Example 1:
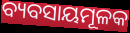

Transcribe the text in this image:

ବ୍ୟବସାୟମୂଳକ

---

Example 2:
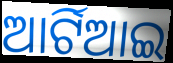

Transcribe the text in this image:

ଆର୍ଟିଆଇ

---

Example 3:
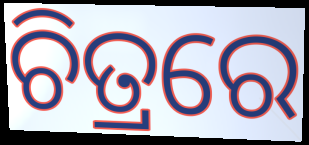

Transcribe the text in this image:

ଚିତ୍ରରେ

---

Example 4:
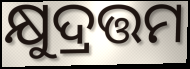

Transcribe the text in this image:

କ୍ଷୁଦ୍ରତ୍ତମ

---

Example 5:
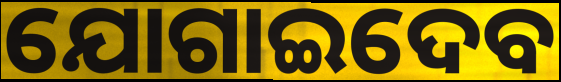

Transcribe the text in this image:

ଯୋଗାଇଦେବ